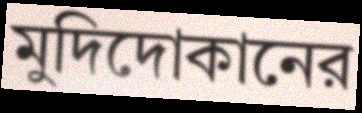
মুদিদোকানের